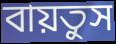
বায়তুস